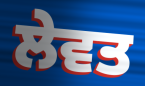
ਲੇਵਤ